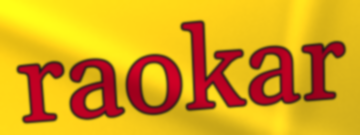
raokar